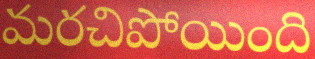
మరచిపోయింది